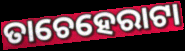
ତାଚେହେରାଟା